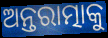
ଅନ୍ତରାତ୍ମାକୁ